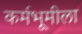
कर्मभूमीला